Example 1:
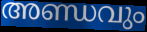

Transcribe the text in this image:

അണ്ഡവും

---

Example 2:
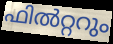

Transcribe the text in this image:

ഫിൽറ്ററും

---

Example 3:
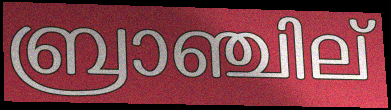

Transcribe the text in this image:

ബ്രാഞ്ചില്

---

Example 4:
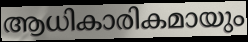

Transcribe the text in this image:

ആധികാരികമായും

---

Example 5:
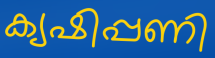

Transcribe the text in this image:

ക്യഷിപ്പണി